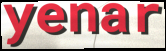
yenar